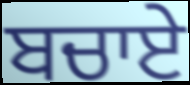
ਬਚਾਏ